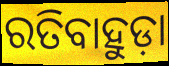
ରତିବାହୁଡ଼ା